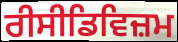
ਰੀਸੀਡਿਵਿਜ਼ਮ